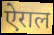
ऐराल